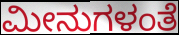
ಮೀನುಗಳಂತೆ